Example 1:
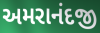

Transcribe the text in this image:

અમરાનંદજી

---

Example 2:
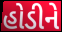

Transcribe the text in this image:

હોડીને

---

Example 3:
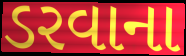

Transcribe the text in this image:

ડરવાના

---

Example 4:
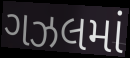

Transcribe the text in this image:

ગઝલમાં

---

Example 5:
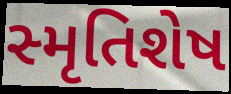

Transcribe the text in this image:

સ્મૃતિશેષ